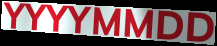
YYYYMMDD